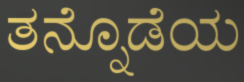
ತನ್ನೊಡೆಯ